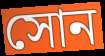
সোন